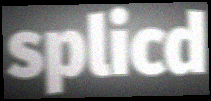
splicd